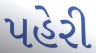
પહેરી